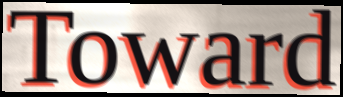
Toward